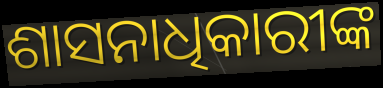
ଶାସନାଧିକାରୀଙ୍କ